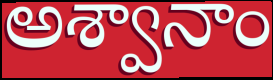
అశ్వానాం